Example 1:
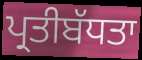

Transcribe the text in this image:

ਪ੍ਰਤੀਬੱਧਤਾ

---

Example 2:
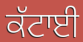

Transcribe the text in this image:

ਕੱਟਾਈ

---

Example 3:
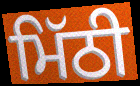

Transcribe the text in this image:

ਮਿੱਠੀ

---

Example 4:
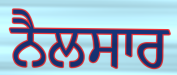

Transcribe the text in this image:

ਨੈਲਸਾਰ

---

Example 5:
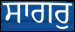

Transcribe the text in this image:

ਸਾਗਰੁ